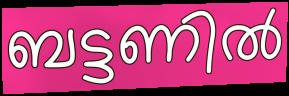
ബട്ടണിൽ